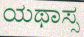
ಯಥಾಸ್ಸ